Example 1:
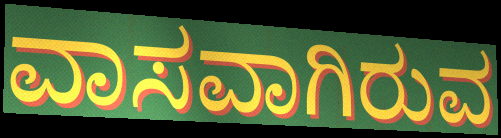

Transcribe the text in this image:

ವಾಸವಾಗಿರುವ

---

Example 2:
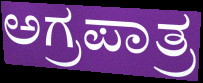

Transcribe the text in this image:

ಅಗ್ರಪಾತ್ರ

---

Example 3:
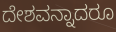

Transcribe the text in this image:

ದೇಶವನ್ನಾದರೂ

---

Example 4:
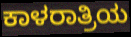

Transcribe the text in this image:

ಕಾಳರಾತ್ರಿಯ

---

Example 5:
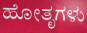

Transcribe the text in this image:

ಹೋತೃಗಳು